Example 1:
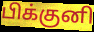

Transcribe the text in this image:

பிக்குனி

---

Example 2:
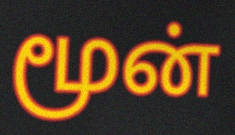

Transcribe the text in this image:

மூன்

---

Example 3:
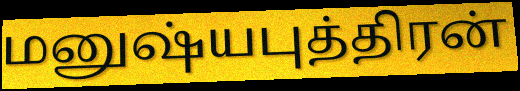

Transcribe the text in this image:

மனுஷ்யபுத்திரன்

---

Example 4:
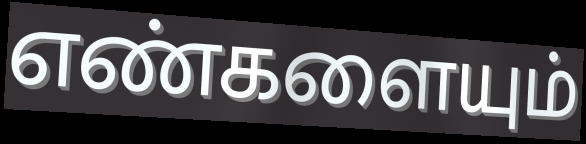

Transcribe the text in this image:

எண்களையும்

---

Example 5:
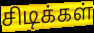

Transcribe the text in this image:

சிடிக்கள்